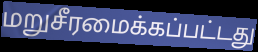
மறுசீரமைக்கப்பட்டது